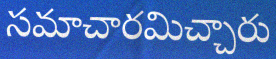
సమాచారమిచ్చారు